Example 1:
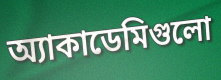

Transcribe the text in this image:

অ্যাকাডেমিগুলো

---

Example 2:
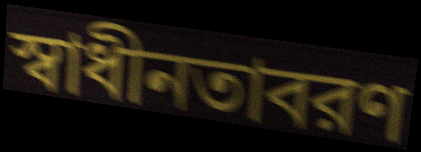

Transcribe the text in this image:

স্বাধীনতাবরণ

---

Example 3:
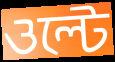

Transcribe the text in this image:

ওল্টে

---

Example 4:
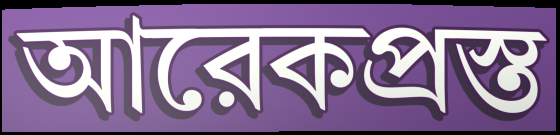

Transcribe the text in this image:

আরেকপ্রস্ত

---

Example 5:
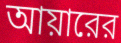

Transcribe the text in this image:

আয়ারের